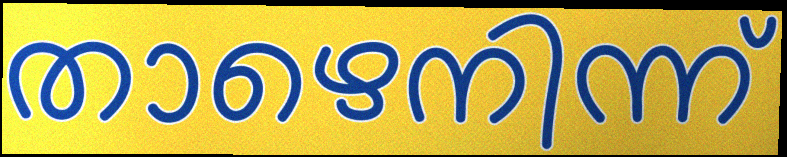
താഴെനിന്ന്